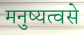
मनुष्यत्वसे